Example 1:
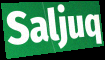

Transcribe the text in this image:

Saljuq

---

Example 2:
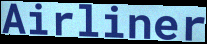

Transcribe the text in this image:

Airliner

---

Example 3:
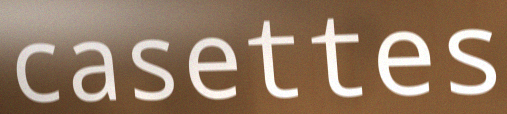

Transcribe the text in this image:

casettes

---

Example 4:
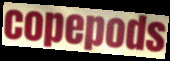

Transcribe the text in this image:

copepods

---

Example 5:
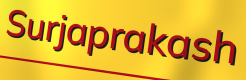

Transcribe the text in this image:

Surjaprakash